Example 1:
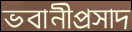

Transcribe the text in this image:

ভবানীপ্রসাদ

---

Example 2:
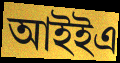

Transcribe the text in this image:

আইইএ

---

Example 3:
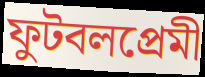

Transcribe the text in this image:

ফুটবলপ্রেমী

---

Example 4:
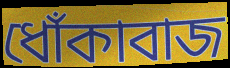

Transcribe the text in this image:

ধোঁকাবাজ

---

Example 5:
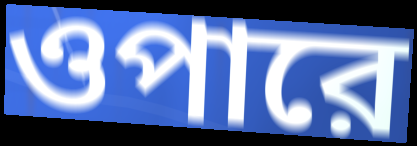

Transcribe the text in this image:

ওপারে